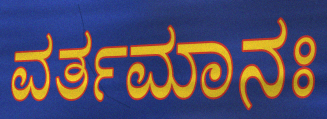
ವರ್ತಮಾನಃ